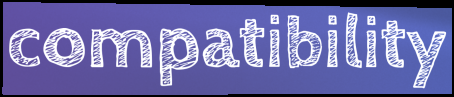
compatibility